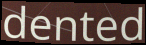
dented